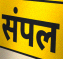
संपल